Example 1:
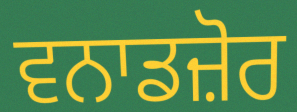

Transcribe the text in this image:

ਵਨਾਡਜ਼ੋਰ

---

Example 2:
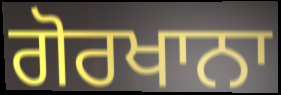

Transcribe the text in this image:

ਗੋਰਖਾਨਾ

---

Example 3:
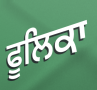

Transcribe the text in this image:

ਫੂਲਿਕਾ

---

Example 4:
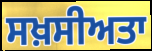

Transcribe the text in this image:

ਸਖ਼ਸੀਅਤਾ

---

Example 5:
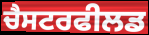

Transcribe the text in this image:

ਚੈਸਟਰਫੀਲਡ